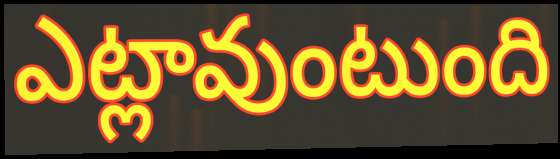
ఎట్లావుంటుంది